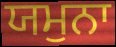
ਯਮੁਨਾ